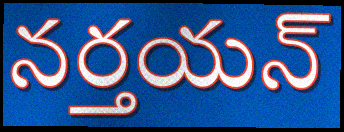
నర్తయన్